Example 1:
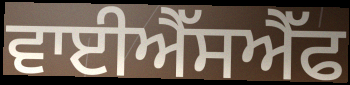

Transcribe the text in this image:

ਵਾਈਐੱਸਐੱਫ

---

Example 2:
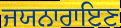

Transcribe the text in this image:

ਜਯਨਾਰਾਇਣ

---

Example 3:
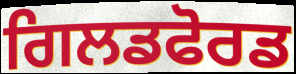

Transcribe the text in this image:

ਗਿਲਡਫੋਰਡ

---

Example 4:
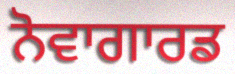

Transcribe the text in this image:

ਨੋਵਾਗਾਰਡ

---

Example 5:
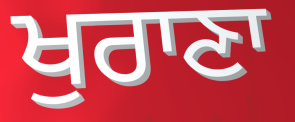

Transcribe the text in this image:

ਖੁਰਾਣਾ